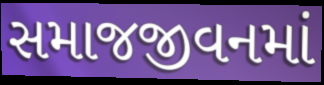
સમાજજીવનમાં